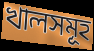
খালসমূহ